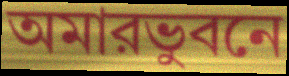
অমারভুবনে